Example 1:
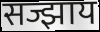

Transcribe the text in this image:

सज्झाय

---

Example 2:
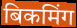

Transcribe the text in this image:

बिकमिंग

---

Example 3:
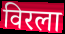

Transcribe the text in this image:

विरला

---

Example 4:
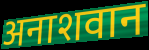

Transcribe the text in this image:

अनाशवान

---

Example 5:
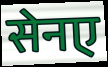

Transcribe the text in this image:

सेनए